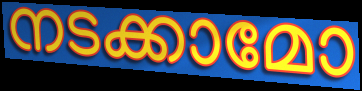
നടക്കാമോ